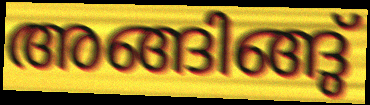
അങ്ങിങ്ങു്